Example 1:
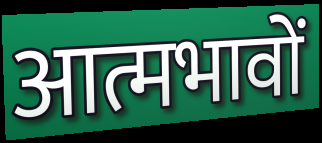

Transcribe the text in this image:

आत्मभावों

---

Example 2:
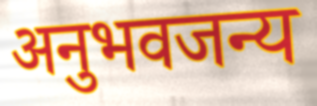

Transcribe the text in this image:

अनुभवजन्य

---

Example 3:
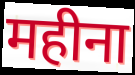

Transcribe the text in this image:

महीना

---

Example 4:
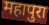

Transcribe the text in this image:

महापुरा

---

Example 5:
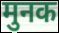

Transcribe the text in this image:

मुनक